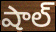
షాల్